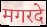
मगरदे